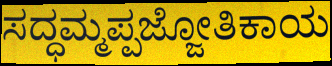
ಸದ್ಧಮ್ಮಪ್ಪಜ್ಜೋತಿಕಾಯ